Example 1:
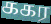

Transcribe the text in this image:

ககர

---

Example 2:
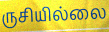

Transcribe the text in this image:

ருசியில்லை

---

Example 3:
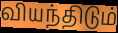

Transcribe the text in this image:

வியந்திடும்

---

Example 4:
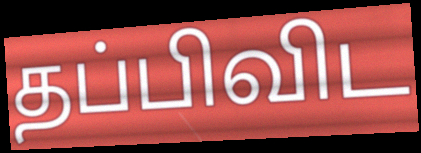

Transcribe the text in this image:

தப்பிவிட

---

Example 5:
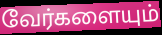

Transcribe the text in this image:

வேர்களையும்